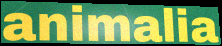
animalia